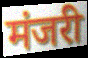
मंजरी